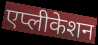
एप्लीकेशन